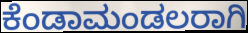
ಕೆಂಡಾಮಂಡಲರಾಗಿ